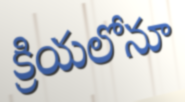
క్రియలోనూ